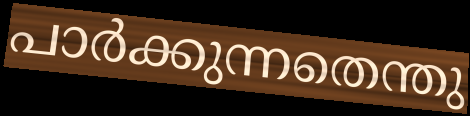
പാർക്കുന്നതെന്തു